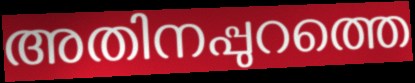
അതിനപ്പുറത്തെ